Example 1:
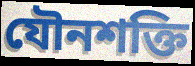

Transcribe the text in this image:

যৌনশক্তি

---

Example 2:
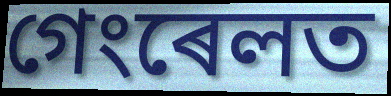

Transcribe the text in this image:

গেংৰেলত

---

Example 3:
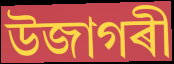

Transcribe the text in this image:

উজাগৰী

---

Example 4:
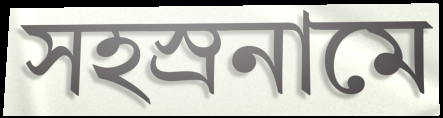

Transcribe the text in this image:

সহস্ৰনামে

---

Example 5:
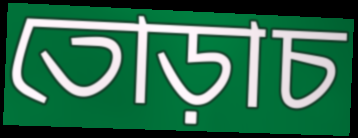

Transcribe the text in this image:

তোড়াচ